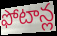
ఫోటాన్ల